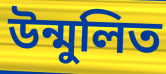
উন্মুলিত